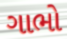
ગાભો